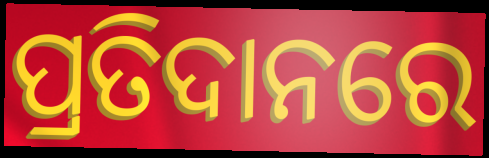
ପ୍ରତିଦାନରେ